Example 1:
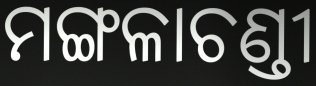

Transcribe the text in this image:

ମଙ୍ଗଳାଚଣ୍ଡୀ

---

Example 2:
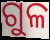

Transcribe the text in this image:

ଗୁଳ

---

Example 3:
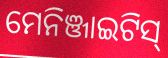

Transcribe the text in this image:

ମେନିଞ୍ଜାଇଟିସ୍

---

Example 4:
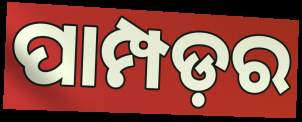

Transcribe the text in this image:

ପାମ୍ପଡ଼ର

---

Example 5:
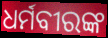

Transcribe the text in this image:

ଧର୍ମବୀରଙ୍କ